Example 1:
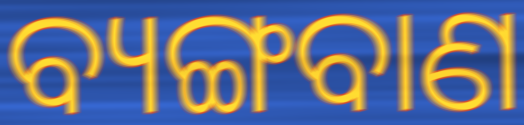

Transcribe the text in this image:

ବ୍ୟଙ୍ଗବାଣ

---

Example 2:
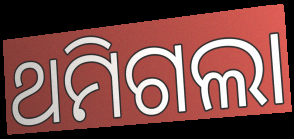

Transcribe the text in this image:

ଥମିଗଲା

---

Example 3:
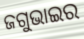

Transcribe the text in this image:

ଜଗୁଭାଇର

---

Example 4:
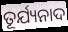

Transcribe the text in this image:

ତୂର୍ଯ୍ୟନାଦ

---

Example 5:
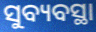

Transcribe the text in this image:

ସୁବ୍ୟବସ୍ଥା